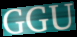
GGU